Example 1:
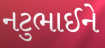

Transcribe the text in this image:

નટુભાઈને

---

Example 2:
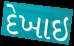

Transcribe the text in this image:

દેખાઇ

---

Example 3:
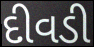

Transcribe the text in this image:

દીવડી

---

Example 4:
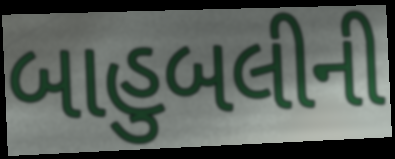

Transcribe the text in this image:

બાહુબલીની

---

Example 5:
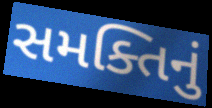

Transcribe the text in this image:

સમક્તિનું